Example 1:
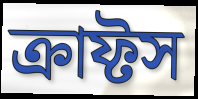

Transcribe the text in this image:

ক্রাফ্টস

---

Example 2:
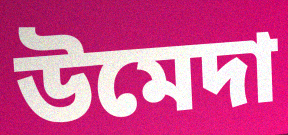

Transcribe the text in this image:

উমেদা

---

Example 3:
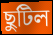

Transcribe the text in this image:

ছুটিল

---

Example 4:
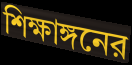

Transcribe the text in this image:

শিক্ষাঙ্গনের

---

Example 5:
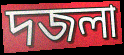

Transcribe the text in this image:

দজলা